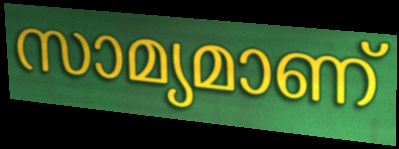
സാമ്യമാണ്